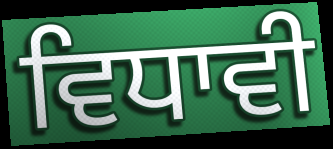
ਵਿਧਾਵੀ